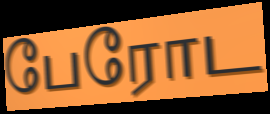
பேரோட